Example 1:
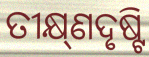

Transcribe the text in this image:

ତୀକ୍ଷ୍‌ଣଦୃଷ୍ଟି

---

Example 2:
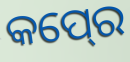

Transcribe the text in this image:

କପ୍‍ରେ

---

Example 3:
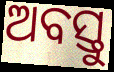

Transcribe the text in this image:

ଅବସ୍ତୁ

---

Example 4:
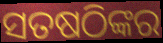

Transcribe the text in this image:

ସତଷଠିଙ୍କର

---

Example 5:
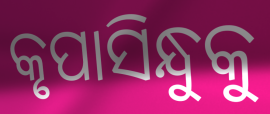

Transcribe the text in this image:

କୃପାସିନ୍ଧୁକୁ